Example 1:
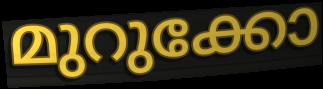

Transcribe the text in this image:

മുറുക്കോ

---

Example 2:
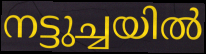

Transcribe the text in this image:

നട്ടുച്ചയിൽ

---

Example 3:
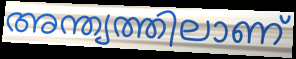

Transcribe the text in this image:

അന്ത്യത്തിലാണ്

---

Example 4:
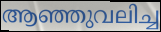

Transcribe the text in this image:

ആഞ്ഞുവലിച്ച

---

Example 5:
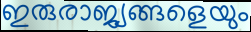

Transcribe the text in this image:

ഇരുരാജ്യങ്ങളെയും